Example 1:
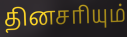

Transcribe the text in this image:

தினசரியும்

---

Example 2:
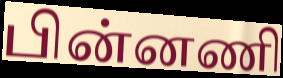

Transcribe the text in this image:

பின்னணி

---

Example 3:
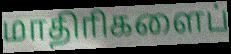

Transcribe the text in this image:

மாதிரிகளைப்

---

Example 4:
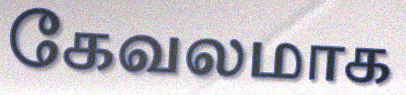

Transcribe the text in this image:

கேவலமாக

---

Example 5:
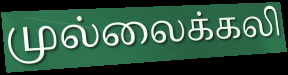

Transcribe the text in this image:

முல்லைக்கலி